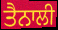
ਤੈਨਾਲੀ